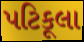
પટિકૂલા